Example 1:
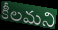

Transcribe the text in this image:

కీలమని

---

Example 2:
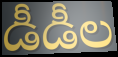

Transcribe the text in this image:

డీడీల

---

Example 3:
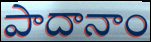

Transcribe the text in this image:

పాదానాం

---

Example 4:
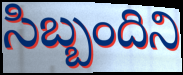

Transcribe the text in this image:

సిబ్బందిని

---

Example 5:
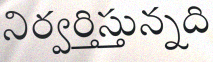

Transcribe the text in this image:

నిర్వర్తిస్తున్నది